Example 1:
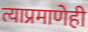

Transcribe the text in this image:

त्याप्रमाणेही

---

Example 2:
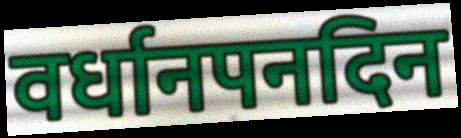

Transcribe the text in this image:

वर्धानपनदिन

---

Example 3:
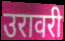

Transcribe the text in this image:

उरावरी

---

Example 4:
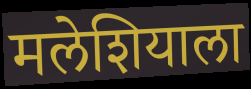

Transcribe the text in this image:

मलेशियाला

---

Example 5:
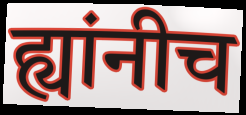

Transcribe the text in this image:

ह्यांनीच